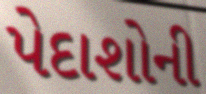
પેદાશોની